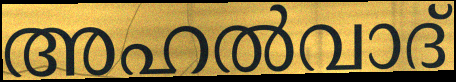
അഹൽവാദ്